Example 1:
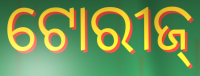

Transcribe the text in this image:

ଟୋରୀଜ୍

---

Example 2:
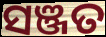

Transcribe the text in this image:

ସଞ୍ଜତ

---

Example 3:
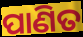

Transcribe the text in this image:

ପାଣିତ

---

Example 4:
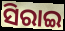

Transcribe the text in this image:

ସିରାଇ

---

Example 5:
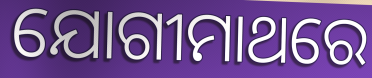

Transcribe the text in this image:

ଯୋଗୀମାଥରେ